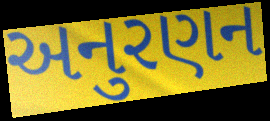
અનુરણન